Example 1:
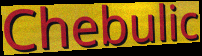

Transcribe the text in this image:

Chebulic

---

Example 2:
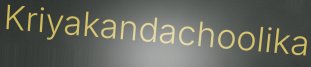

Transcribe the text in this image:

Kriyakandachoolika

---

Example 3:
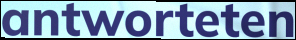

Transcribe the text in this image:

antworteten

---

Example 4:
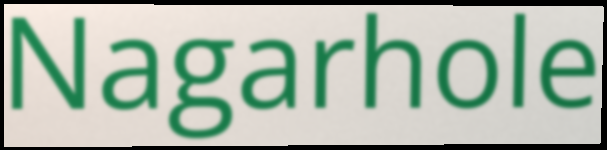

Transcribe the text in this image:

Nagarhole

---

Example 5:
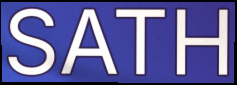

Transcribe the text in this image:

SATH